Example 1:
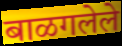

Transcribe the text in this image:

बाळगलेले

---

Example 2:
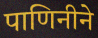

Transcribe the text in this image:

पाणिनीने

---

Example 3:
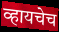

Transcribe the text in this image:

व्हायचेच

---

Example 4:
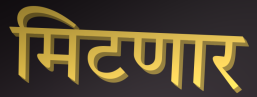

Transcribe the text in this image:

मिटणार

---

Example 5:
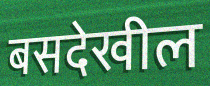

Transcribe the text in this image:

बसदेखील